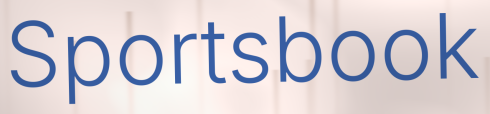
Sportsbook